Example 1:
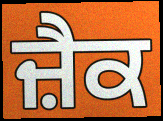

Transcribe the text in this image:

ਜ਼ੈਕ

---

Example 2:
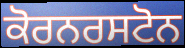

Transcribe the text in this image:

ਕੋਰਨਰਸਟੋਨ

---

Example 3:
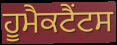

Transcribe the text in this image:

ਹੂਮੈਕਟੈਂਟਸ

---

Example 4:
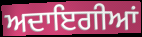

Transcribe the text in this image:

ਅਦਾਇਗੀਆਂ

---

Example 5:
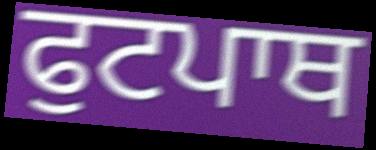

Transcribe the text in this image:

ਫੁਟਪਾਥ